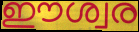
ഈശ്വര